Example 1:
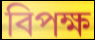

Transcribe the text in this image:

বিপক্ষ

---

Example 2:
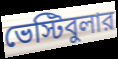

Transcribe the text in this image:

ভেস্টিবুলার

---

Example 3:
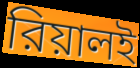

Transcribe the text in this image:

রিয়ালই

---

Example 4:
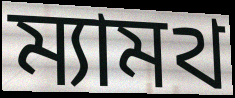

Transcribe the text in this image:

ম্যামথ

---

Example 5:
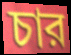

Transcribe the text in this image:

চার